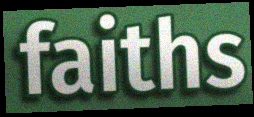
faiths